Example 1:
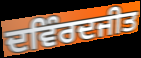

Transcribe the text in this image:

ਦਵਿੰਰਦਜੀਤ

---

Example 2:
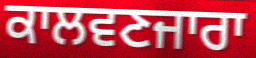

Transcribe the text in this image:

ਕਾਲਵਣਜਾਰਾ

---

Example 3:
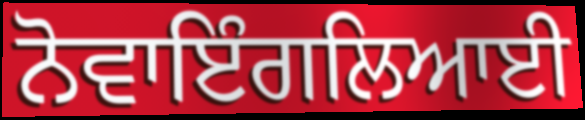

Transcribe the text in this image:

ਨੋਵਾਇੰਗਲਿਆਈ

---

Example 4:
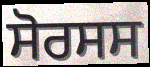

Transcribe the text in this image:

ਸੋਰਸਸ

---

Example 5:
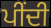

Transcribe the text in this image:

ਪੀਂਦੀ